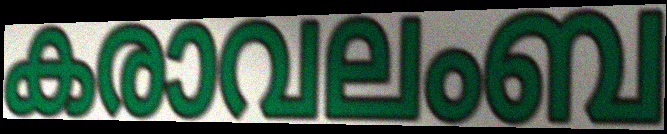
കരാവലംബ